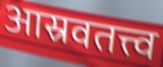
आस्रवतत्त्व